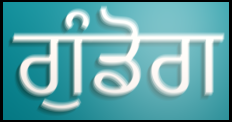
ਗੁੰਡੋਗ